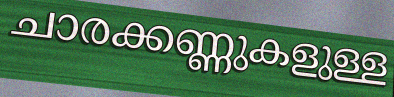
ചാരക്കണ്ണുകളുള്ള